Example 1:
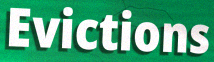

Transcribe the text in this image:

Evictions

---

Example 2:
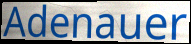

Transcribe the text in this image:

Adenauer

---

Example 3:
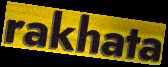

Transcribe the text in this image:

rakhata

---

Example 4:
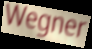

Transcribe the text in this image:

Wegner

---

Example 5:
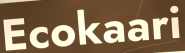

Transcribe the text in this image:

Ecokaari